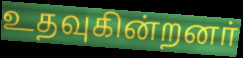
உதவுகின்றனர்